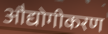
औद्योगीकरण